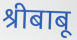
श्रीबाबू